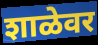
शाळेवर